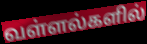
வள்ளல்களில்